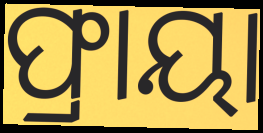
ଫ୍ରାୟା